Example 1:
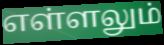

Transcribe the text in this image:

எள்ளலும்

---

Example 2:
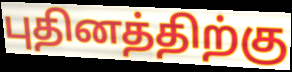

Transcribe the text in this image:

புதினத்திற்கு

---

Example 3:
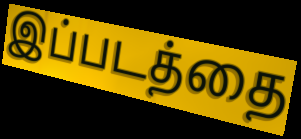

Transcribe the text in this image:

இப்படத்தை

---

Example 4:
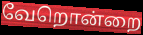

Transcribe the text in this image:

வேறொன்றை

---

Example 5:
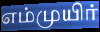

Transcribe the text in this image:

எம்முயிர்